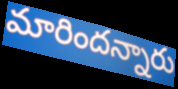
మారిందన్నారు